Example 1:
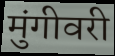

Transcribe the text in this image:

मुंगीवरी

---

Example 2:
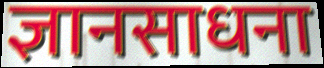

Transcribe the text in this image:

ज्ञानसाधना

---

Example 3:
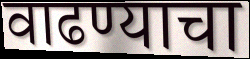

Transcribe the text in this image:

वाढण्याचा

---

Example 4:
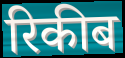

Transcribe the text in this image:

रिकीब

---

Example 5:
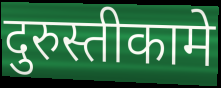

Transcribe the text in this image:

दुरुस्तीकामे